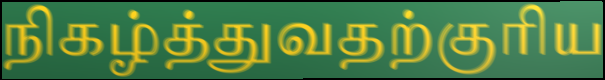
நிகழ்த்துவதற்குரிய